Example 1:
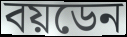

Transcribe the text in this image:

বয়ডেন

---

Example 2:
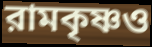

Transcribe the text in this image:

রামকৃষ্ণও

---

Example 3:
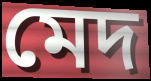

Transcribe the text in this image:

মেদ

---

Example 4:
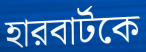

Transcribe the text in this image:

হারবার্টকে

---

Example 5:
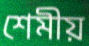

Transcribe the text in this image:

শেমীয়